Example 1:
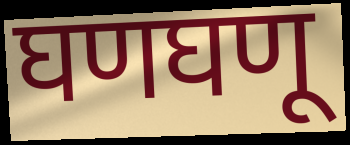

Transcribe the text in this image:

घणघणू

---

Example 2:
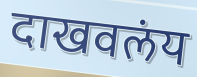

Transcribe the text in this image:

दाखवलंय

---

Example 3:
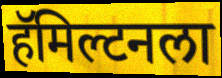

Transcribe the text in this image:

हॅमिल्टनला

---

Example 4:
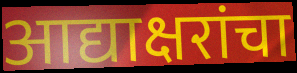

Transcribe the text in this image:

आद्याक्षरांचा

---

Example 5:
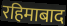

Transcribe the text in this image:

रहिमाबाद